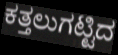
ಕತ್ತಲುಗಟ್ಟಿದ